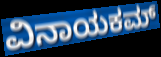
ವಿನಾಯಕಮ್